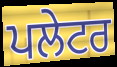
ਪਲੇਟਰ